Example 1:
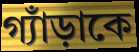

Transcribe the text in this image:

গ্যাঁড়াকে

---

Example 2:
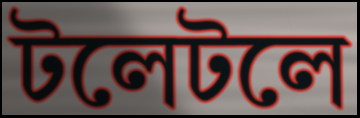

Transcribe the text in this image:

টলেটলে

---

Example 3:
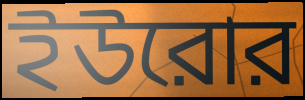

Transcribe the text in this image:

ইউরোর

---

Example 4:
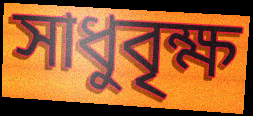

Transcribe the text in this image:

সাধুবৃক্ষ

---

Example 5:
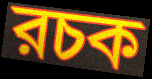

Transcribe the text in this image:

রচক